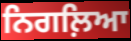
ਨਿਗਲ਼ਿਆ